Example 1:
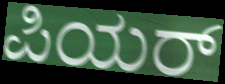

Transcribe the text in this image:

ಪಿಯರ್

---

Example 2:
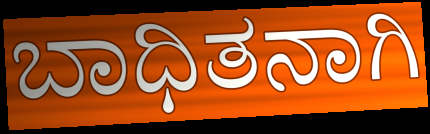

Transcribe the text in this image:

ಬಾಧಿತನಾಗಿ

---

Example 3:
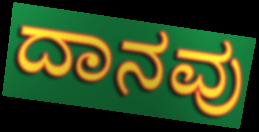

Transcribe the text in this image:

ದಾನವು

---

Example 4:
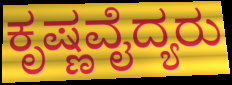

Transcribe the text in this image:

ಕೃಷ್ಣವೈದ್ಯರು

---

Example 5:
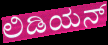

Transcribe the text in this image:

ಲಿಡಿಯನ್